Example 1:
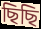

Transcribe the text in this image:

ছিছি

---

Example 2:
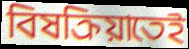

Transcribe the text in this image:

বিষক্রিয়াতেই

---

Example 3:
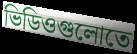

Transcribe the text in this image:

ভিডিওগুলোতে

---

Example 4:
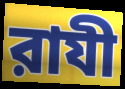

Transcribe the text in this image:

রাযী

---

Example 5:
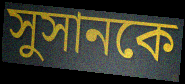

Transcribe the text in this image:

সুসানকে